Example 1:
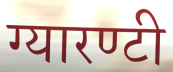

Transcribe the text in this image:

ग्यारण्टी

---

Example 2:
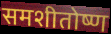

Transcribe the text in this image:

समशीतोष्ण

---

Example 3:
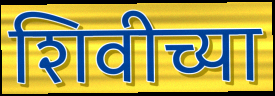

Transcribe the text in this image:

शिवीच्या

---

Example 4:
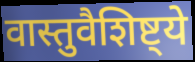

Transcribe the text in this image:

वास्तुवैशिष्ट्ये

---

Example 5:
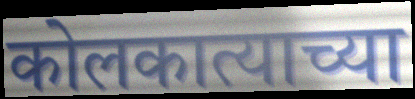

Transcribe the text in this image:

कोलकात्याच्या